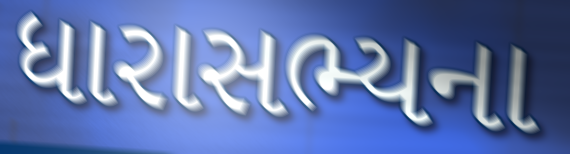
ધારાસભ્યના